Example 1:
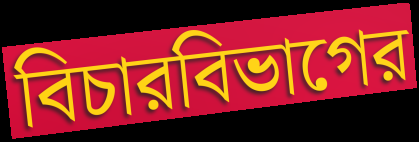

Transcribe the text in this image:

বিচারবিভাগের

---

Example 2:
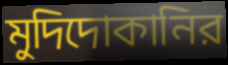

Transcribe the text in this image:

মুদিদোকানির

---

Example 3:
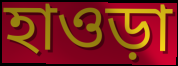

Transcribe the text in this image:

হাওড়া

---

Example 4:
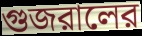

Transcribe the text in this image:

গুজরালের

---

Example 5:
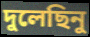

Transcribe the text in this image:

দুলেছিনু